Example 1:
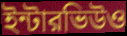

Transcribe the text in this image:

ইন্টারভিউও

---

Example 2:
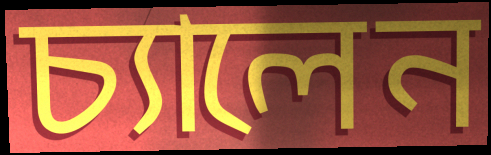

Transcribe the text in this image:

চ্যালেন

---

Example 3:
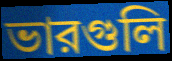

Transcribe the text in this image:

ভারগুলি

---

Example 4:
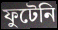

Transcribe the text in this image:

ফুটেনি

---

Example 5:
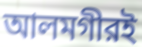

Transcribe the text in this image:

আলমগীরই